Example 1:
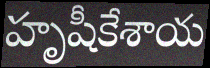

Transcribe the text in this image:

హృషీకేశాయ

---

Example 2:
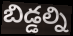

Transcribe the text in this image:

బిడ్డల్ని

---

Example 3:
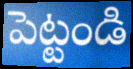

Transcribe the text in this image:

పెట్టండి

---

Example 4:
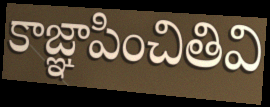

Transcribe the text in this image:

కాజ్ఞాపించితివి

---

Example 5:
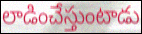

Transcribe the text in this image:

లాడించేస్తుంటాడు